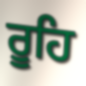
ਰੂਹਿ